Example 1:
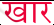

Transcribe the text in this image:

खार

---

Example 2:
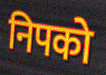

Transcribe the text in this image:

निपको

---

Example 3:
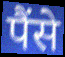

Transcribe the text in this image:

पैंसे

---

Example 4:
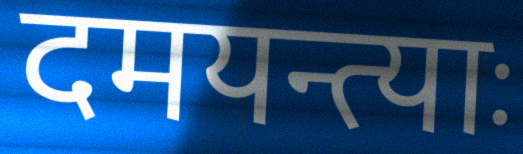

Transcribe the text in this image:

दमयन्त्याः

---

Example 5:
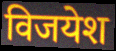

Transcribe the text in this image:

विजयेश